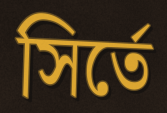
সির্তে